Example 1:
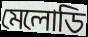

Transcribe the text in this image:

মেলোডি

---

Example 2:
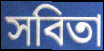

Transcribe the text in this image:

সবিতা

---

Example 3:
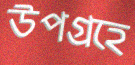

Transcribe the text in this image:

উপগ্রহে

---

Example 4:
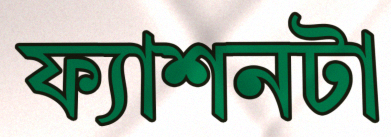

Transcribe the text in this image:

ফ্যাশনটা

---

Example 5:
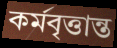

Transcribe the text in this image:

কর্মবৃত্তান্ত